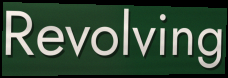
Revolving